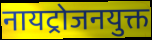
नायट्रोजनयुक्त